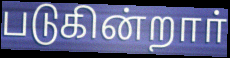
படுகின்றார்